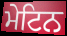
ਮੇਟਿਨ